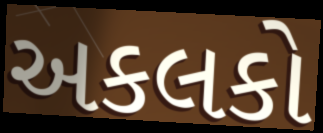
અકલકો